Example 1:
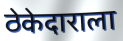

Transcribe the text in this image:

ठेकेदाराला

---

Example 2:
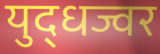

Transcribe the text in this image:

युद्धज्वर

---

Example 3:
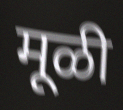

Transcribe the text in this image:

मूळी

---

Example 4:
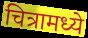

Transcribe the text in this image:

चित्रामध्ये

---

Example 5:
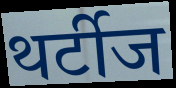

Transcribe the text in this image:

थर्टीज